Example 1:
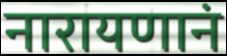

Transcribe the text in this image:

नारायणानं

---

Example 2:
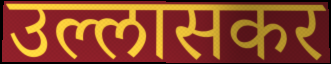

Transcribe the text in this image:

उल्लासकर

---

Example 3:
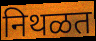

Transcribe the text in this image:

निथळत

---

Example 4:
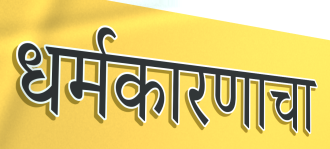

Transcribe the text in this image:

धर्मकारणाचा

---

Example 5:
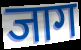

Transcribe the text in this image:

जाग